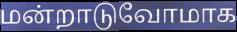
மன்றாடுவோமாக